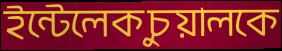
ইন্টেলেকচুয়ালকে